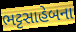
ભટ્ટસાહેબના